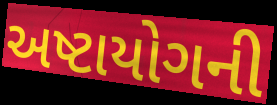
અષ્ટાયોગની